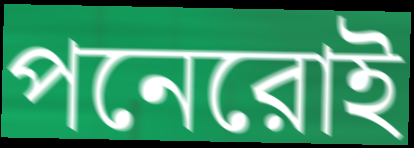
পনেরোই